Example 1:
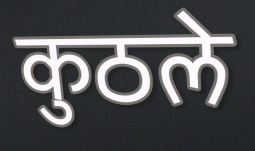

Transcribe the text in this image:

कुठले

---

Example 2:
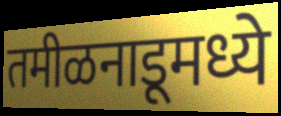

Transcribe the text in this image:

तमीळनाडूमध्ये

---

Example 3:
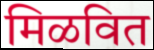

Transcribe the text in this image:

मिळवित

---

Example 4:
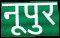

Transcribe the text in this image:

नूपुर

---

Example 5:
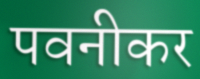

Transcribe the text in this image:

पवनीकर